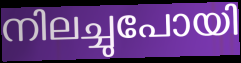
നിലച്ചുപോയി